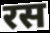
रस